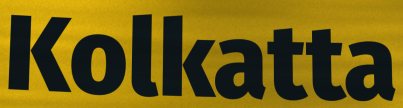
Kolkatta